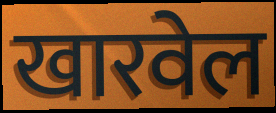
खारवेल